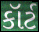
કૉર્ટ